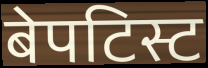
बेपटिस्ट